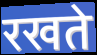
रखते